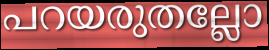
പറയരുതല്ലോ